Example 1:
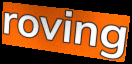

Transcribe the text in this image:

roving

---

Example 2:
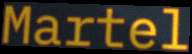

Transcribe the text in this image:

Martel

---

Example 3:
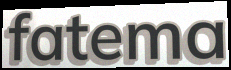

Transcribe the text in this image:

fatema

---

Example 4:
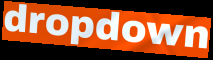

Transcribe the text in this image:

dropdown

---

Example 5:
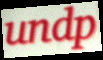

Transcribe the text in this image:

undp